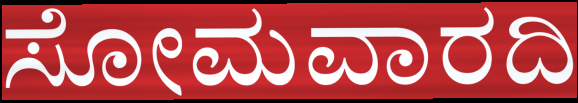
ಸೋಮವಾರದಿ